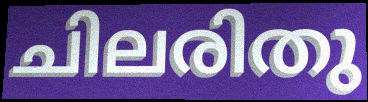
ചിലരിതു